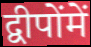
द्वीपोंमें